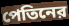
পেতিনের